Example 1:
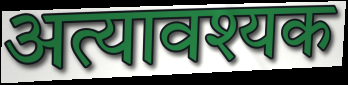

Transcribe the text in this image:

अत्यावश्‍यक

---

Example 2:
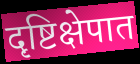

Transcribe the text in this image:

दृष्टिक्षेपात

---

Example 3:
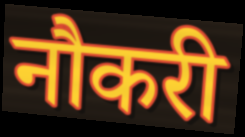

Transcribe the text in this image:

नौकरी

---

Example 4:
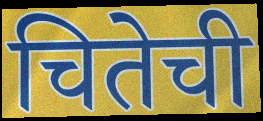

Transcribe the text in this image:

चितेची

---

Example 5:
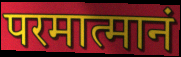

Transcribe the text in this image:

परमात्मानं